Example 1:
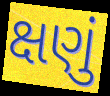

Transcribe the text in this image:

ક્ષણું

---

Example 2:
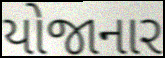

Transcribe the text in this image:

યોજાનાર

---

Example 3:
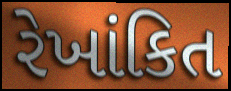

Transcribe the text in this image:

રેખાંકિત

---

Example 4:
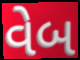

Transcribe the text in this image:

વેબ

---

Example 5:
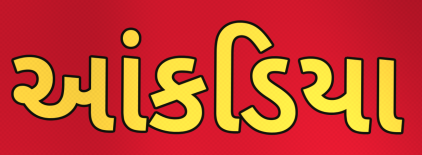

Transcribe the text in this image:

આંકડિયા